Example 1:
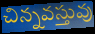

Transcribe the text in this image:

చిన్నవస్తువు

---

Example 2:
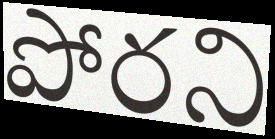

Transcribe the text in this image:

పోరని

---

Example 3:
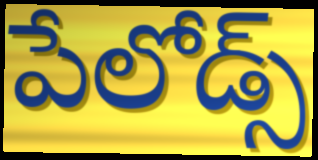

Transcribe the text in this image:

పేలోడ్స్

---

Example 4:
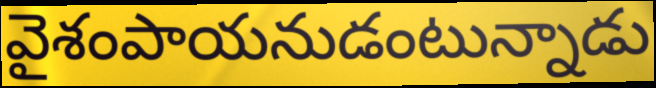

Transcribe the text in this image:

వైశంపాయనుడంటున్నాడు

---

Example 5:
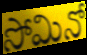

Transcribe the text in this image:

సోమినో